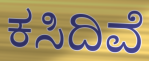
ಕಸಿದಿವೆ